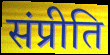
संप्रीति